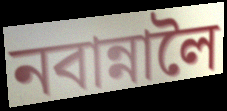
নবান্নালৈ